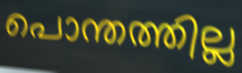
പൊന്തത്തില്ല